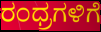
ರಂಧ್ರಗಳಿಗೆ